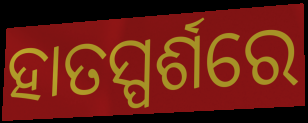
ହାତସ୍ପର୍ଶରେ